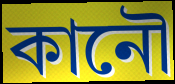
কানৌ